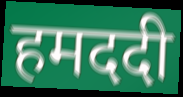
हमददी